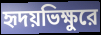
হৃদয়ভিক্ষুরে